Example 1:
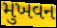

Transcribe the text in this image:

મુખવન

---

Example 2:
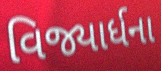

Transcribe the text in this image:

વિજ્યાર્ધના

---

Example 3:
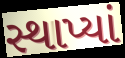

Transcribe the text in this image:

સ્થાપ્યાં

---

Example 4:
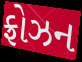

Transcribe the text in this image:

ફ્રોઝન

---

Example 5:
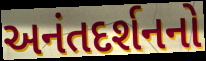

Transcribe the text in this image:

અનંતદર્શનનો